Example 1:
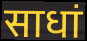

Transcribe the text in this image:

साधां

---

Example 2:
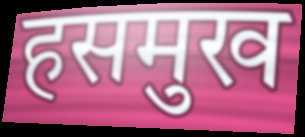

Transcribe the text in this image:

हसमुख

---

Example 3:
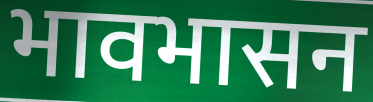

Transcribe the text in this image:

भावभासन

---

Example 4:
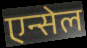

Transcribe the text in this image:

एन्सेल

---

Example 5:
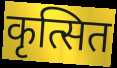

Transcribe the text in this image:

कृत्सित